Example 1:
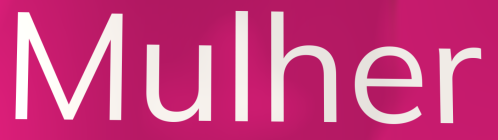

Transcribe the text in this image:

Mulher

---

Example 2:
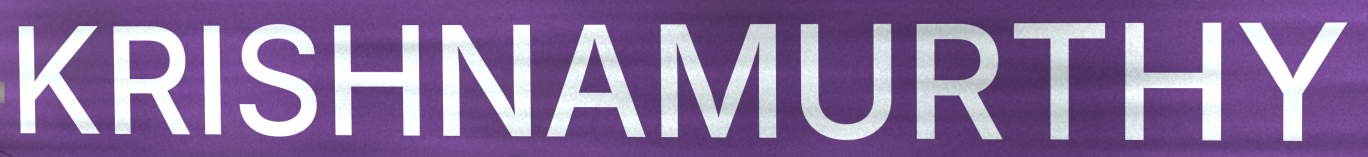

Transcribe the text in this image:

KRISHNAMURTHY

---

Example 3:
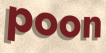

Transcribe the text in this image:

poon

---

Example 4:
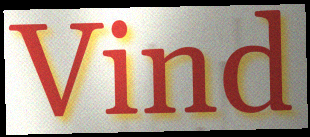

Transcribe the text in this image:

Vind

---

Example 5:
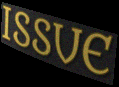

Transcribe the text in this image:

ISSUE